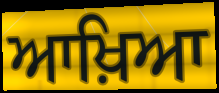
ਆਖ਼ਿਆ